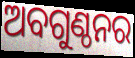
ଅବଗୁଣ୍ଠନର